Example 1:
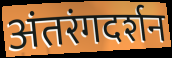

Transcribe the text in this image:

अंतरंगदर्शन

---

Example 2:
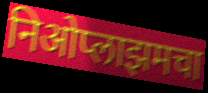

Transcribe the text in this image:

निओप्लाझमचा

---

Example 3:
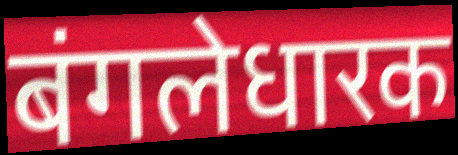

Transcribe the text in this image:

बंगलेधारक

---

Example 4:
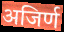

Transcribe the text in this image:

अजिर्ण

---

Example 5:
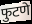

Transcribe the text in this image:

फुटणे